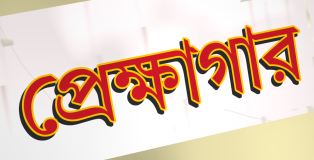
প্রেক্ষাগার